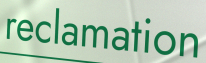
reclamation